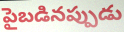
పైబడినప్పుడు